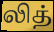
லித்